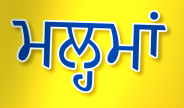
ਮਲ੍ਹਮਾਂ